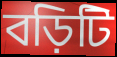
বড়িটি